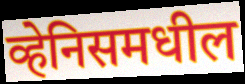
व्हेनिसमधील